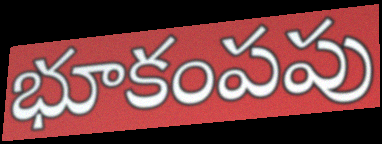
భూకంపపు